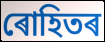
ৰোহিতৰ